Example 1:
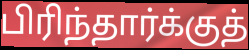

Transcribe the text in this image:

பிரிந்தார்க்குத்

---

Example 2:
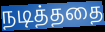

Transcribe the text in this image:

நடித்ததை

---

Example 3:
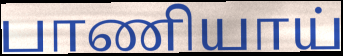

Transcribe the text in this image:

பாணியாய்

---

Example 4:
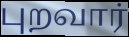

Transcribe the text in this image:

புறவார்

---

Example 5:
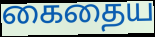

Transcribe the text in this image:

கைதைய